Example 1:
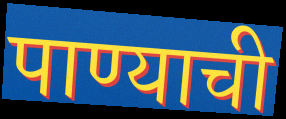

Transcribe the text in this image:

पाण्याची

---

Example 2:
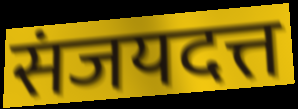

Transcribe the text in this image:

संजयदत्त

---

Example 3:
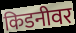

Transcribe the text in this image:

किडनीवर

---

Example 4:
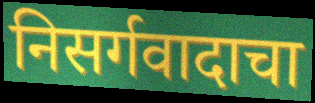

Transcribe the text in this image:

निसर्गवादाचा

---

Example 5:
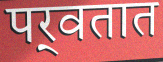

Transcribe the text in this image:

पर्वतात